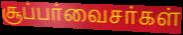
சூப்பர்வைசர்கள்